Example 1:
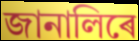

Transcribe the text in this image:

জানালিৰে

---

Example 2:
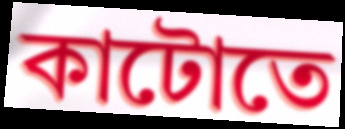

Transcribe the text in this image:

কাটোতে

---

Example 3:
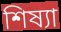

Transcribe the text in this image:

শিষ্যা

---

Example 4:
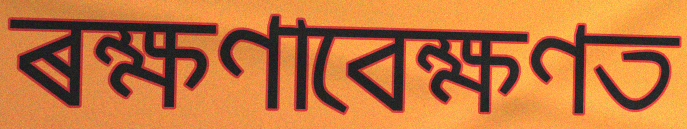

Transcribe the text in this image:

ৰক্ষণাবেক্ষণত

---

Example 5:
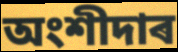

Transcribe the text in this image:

অংশীদাৰ